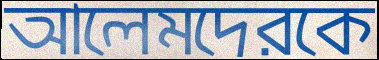
আলেমদেরকে